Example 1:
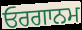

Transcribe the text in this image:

ਓਰਗਾਨਮ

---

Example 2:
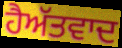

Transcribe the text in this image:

ਹੈਅੱਤਵਾਦ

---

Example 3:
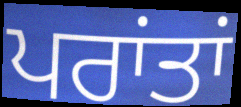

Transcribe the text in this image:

ਪਰਾਂਤਾਂ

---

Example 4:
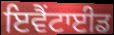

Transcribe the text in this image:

ਇਵੈਂਟਾਈਡ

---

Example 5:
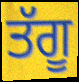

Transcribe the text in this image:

ਤੱਗੂ